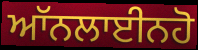
ਆੱਨਲਾਈਨਹੋ